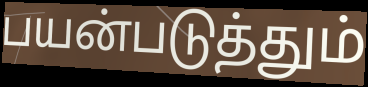
பயன்படுத்தும்